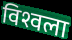
विश्वला